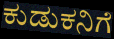
ಕುಡುಕನಿಗೆ